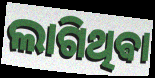
ଲାଗିଥିଵା